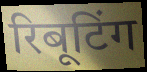
रिबूटिंग